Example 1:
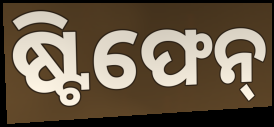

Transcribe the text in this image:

ଷ୍ଟିଫେନ୍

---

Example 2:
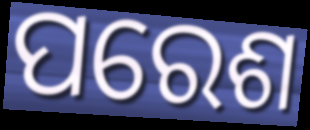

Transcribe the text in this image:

ପରେଶ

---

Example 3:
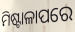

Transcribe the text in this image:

ମିଷ୍ଟାଳାପରେ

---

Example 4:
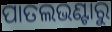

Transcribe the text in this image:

ପାତଲଭଣ୍ଟାରୁ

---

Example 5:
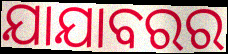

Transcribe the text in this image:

ଯାଯାବରର